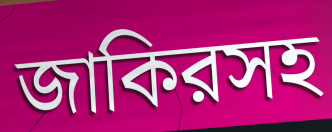
জাকিরসহ